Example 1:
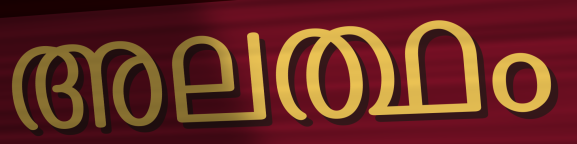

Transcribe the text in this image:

അലത്ഥം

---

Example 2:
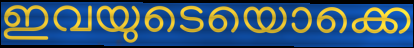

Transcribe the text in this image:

ഇവയുടെയൊക്കെ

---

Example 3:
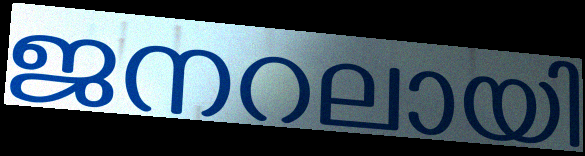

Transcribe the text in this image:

ജനറലായി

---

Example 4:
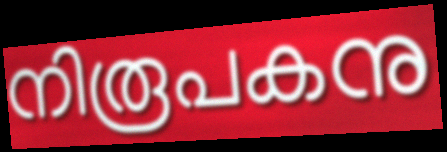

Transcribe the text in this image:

നിരൂപകനു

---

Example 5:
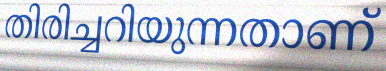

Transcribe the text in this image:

തിരിച്ചറിയുന്നതാണ്